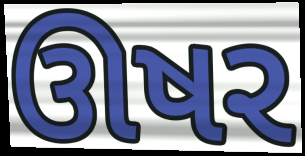
ઊષર